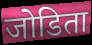
जोडिता